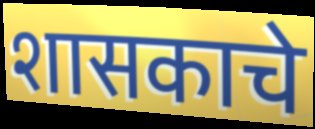
शासकाचे